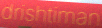
drishtiman